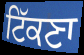
ਟਿੱਕਣਾ